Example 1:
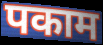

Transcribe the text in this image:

पकाम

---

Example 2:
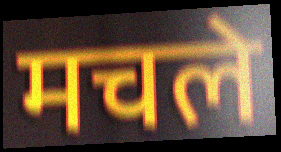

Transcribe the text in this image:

मचले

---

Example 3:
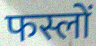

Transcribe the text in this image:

फस्लों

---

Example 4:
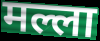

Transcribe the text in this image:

मल्ला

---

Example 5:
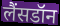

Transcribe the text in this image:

लैंसडॉन